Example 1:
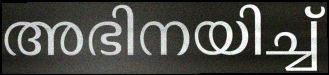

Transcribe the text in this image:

അഭിനയിച്ച്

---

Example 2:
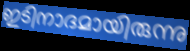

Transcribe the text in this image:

ഇടിനാദമായിരുന്നു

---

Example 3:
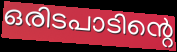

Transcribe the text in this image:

ഒരിടപാടിന്റെ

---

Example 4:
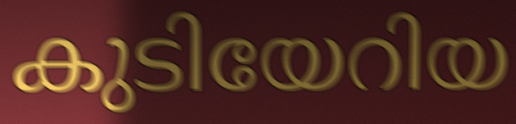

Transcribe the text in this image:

കുടിയേറിയ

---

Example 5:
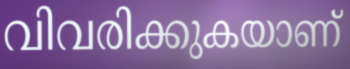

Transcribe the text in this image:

വിവരിക്കുകയാണ്